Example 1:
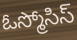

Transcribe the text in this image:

ఓస్మోసిస్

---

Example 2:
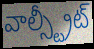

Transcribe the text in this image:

వాల్స్ట్రీట్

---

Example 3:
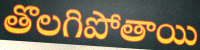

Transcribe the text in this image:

తొలగిపోతాయి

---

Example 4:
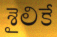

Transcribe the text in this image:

శైలికే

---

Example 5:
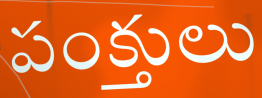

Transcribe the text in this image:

పంక్తులు